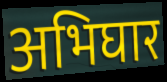
अभिघार